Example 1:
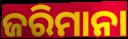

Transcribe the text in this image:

ଜରିମାନା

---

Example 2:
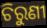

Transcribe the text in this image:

ଚିରୁଣୀ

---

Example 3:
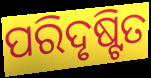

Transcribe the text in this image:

ପରିଦୃଷ୍ଟିତ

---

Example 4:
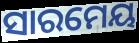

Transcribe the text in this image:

ସାରମେୟ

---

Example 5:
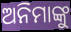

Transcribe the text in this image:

ଅନିମାଙ୍କୁ